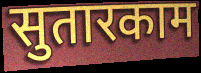
सुतारकाम